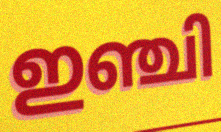
ഇഞ്ചി